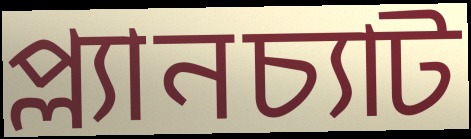
প্ল্যানচ্যাট